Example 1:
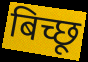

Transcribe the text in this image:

बिच्छू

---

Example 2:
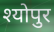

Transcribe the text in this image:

श्योपुर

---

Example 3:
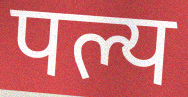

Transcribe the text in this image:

पल्य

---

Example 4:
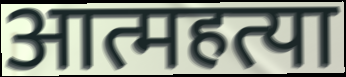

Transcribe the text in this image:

आत्‍महत्‍या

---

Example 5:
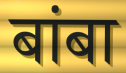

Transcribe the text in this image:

बांबा